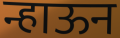
न्हाऊन